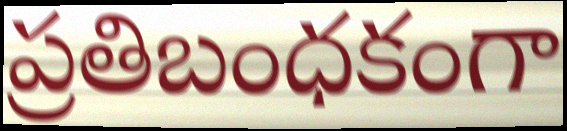
ప్రతిబంధకంగా